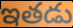
ఇతడు